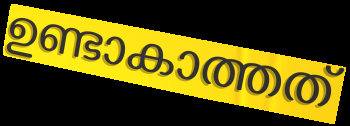
ഉണ്ടാകാത്തത്